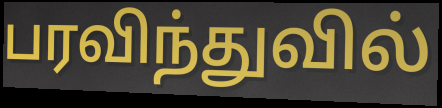
பரவிந்துவில்